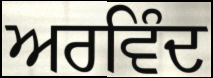
ਅਰਵਿੰਦ